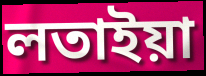
লতাইয়া